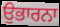
ਉਭਾਰਨਾ